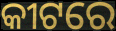
କୀଟରେ